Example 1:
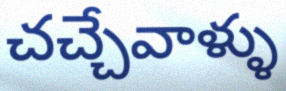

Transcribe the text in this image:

చచ్చేవాళ్ళు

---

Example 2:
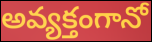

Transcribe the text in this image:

అవ్యక్తంగానో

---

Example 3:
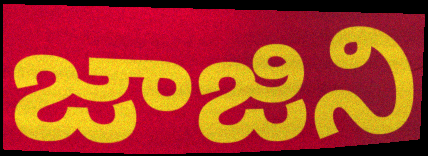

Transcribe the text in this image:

జాజిని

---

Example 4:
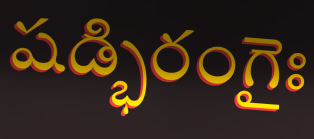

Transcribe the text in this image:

షడ్భిరంగైః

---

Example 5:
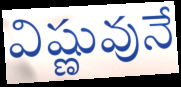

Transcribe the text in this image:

విష్ణువునే